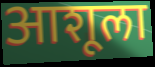
आशूला